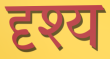
दृश्‍य